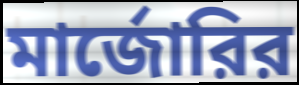
মার্জোরির